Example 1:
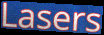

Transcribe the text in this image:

Lasers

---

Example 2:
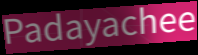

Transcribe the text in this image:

Padayachee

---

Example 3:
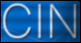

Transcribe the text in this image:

CIN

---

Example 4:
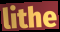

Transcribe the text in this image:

lithe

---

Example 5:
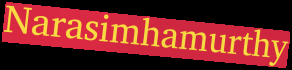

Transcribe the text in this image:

Narasimhamurthy